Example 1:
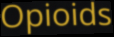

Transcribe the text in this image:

Opioids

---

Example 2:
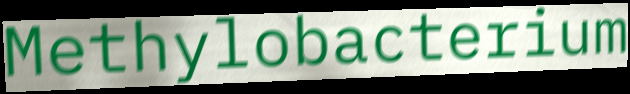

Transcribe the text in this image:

Methylobacterium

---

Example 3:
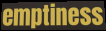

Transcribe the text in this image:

emptiness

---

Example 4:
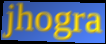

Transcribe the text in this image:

jhogra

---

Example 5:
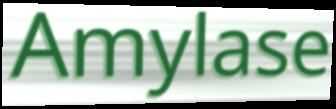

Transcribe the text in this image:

Amylase